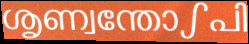
ശൃണ്വന്തോഽപി